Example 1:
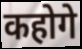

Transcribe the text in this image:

कहोगे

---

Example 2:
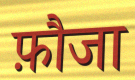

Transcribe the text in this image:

फ़ौजा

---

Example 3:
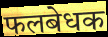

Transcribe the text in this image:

फलबेधक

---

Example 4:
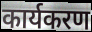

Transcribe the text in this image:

कार्यकरण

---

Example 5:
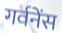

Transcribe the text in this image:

गर्वनेंस